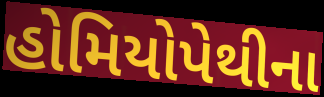
હોમિયોપેથીના